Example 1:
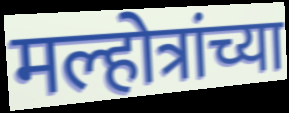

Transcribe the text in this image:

मल्होत्रांच्या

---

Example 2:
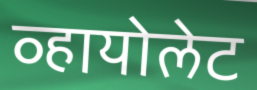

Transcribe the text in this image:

व्हायोलेट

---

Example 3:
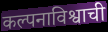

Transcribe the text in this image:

कल्पनाविश्वाची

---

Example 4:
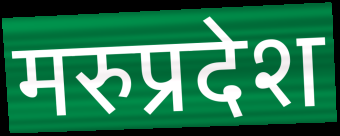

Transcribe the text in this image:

मरुप्रदेश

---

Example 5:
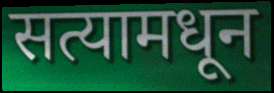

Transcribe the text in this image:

सत्यामधून